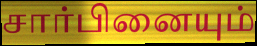
சார்பினையும்